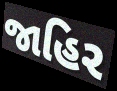
જાહિર